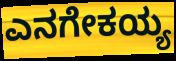
ಎನಗೇಕಯ್ಯ